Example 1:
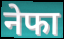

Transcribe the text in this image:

नेफा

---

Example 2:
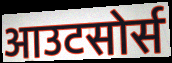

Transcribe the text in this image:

आउटसोर्स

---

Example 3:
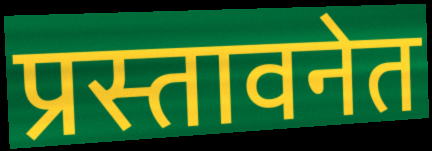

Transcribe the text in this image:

प्रस्तावनेत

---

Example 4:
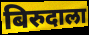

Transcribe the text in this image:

बिरुदाला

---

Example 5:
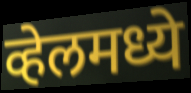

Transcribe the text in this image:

व्हेलमध्ये